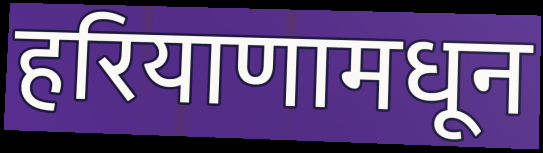
हरियाणामधून